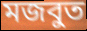
মজবুত